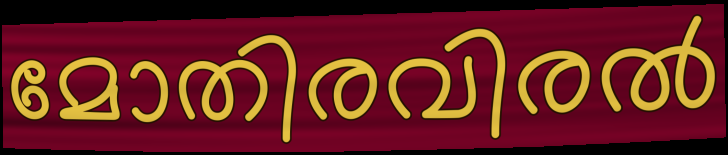
മോതിരവിരൽ